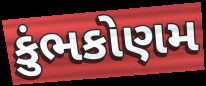
કુંભકોણમ